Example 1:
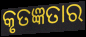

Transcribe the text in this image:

କୃତଜ୍ଞତାର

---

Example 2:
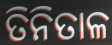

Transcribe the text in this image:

ତିନିତାଳ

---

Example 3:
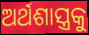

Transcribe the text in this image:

ଅର୍ଥଶାସ୍ତ୍ରକୁ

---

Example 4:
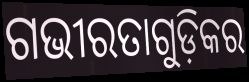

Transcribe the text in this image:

ଗଭୀରତାଗୁଡ଼ିକର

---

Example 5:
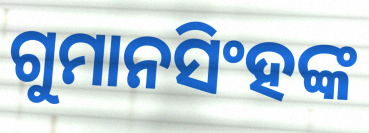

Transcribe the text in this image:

ଗୁମାନସିଂହଙ୍କ